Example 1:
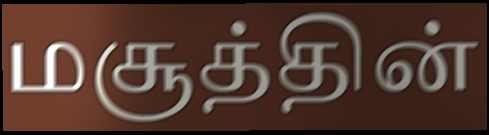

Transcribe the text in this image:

மசூத்தின்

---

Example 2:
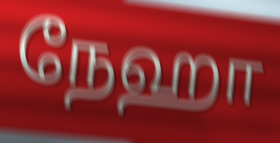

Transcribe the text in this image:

நேஹா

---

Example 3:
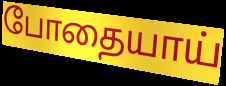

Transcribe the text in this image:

போதையாய்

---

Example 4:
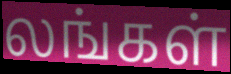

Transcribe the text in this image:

லங்கள்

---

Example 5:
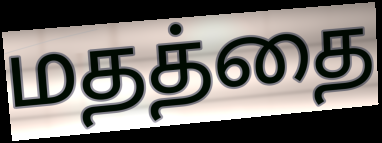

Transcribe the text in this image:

மதத்தை